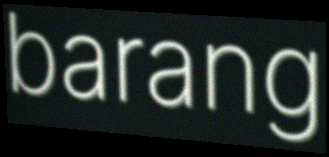
barang